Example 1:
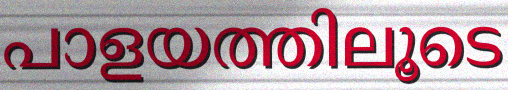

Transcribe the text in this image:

പാളയത്തിലൂടെ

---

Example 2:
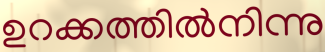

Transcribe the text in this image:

ഉറക്കത്തിൽനിന്നു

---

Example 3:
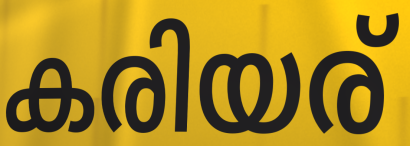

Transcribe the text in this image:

കരിയര്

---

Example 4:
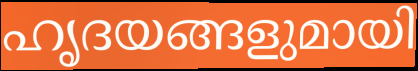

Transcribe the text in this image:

ഹൃദയങ്ങളുമായി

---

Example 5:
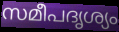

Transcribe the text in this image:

സമീപദൃശ്യം